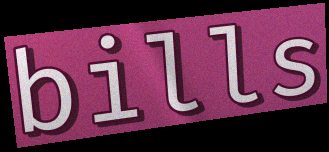
bills